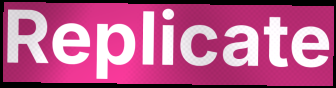
Replicate